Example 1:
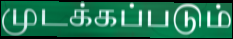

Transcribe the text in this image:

முடக்கப்படும்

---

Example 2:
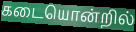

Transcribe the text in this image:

கடையொன்றில்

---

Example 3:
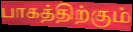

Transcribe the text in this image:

பாகத்திற்கும்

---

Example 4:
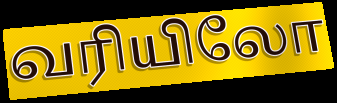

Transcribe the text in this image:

வரியிலோ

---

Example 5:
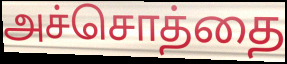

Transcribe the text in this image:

அச்சொத்தை